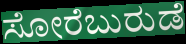
ಸೋರೆಬುರುಡೆ